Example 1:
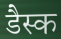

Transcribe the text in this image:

डैस्क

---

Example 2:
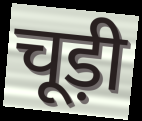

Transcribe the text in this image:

चूड़ी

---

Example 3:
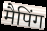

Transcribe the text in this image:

मैपिंग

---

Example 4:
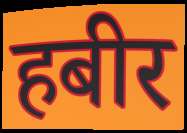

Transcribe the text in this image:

हबीर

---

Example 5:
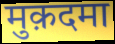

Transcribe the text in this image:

मुक़दमा